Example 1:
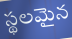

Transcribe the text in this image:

స్థలమైన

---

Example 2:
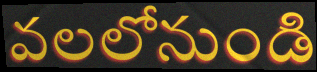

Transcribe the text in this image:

వలలోనుండి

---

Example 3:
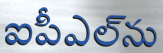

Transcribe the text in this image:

ఐపీఎల్‌ను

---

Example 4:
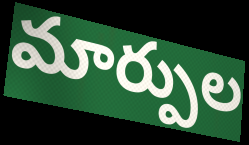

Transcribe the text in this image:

మార్పుల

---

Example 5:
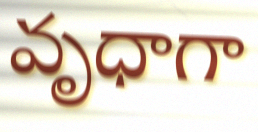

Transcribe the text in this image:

వృధాగా